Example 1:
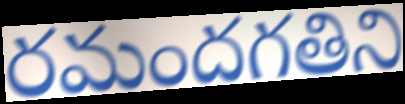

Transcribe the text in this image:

రమందగతిని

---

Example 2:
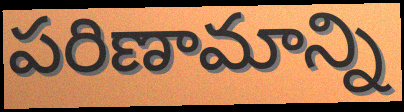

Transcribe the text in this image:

పరిణామాన్ని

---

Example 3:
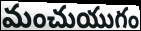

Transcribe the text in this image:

మంచుయుగం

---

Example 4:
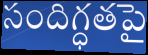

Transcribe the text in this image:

సందిగ్ధతపై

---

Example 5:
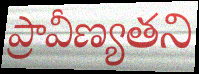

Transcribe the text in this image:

ప్రావీణ్యతని